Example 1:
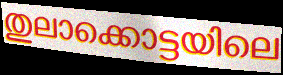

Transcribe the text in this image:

തുലാക്കൊട്ടയിലെ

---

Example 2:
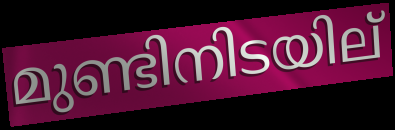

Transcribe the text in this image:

മുണ്ടിനിടയില്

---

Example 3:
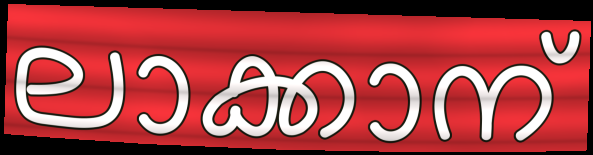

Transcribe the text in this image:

ലാക്കാന്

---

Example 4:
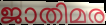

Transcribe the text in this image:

ജാതിമര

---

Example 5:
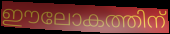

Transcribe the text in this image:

ഈലോകത്തിന്